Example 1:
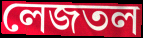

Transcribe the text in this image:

লেজতল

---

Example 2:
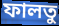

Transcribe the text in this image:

ফালতু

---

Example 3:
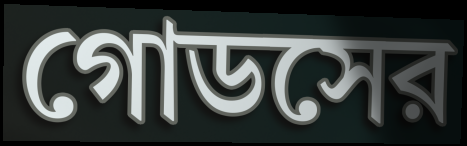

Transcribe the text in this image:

গোডসের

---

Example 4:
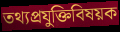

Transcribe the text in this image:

তথ্যপ্রযুক্তিবিষয়ক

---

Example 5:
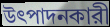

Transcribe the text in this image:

উৎপাদনকারী